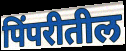
पिंपरीतील